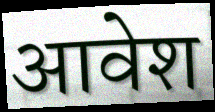
आवेश